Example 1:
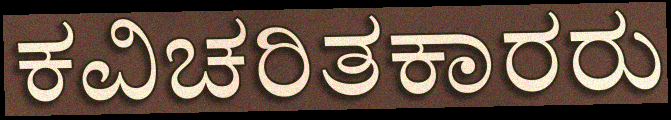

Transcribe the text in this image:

ಕವಿಚರಿತಕಾರರು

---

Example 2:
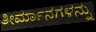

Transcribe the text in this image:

ತೀರ್ಮಾನಗಳನ್ನು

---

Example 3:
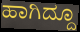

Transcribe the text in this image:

ಹಾಗಿದ್ದೂ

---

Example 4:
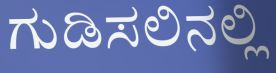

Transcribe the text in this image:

ಗುಡಿಸಲಿನಲ್ಲಿ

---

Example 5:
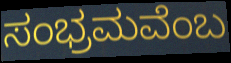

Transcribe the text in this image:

ಸಂಭ್ರಮವೆಂಬ